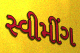
સ્વીમીંગ